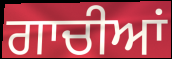
ਗਾਚੀਆਂ